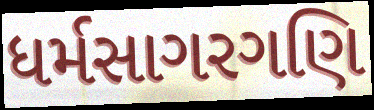
ધર્મસાગરગણિ